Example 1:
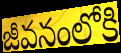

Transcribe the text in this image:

జీవనంలోకి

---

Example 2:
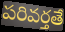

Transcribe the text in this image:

పరివర్తతే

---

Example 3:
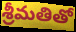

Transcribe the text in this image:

శ్రీమతితో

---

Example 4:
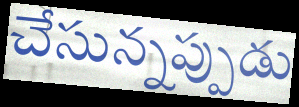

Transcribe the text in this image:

చేసున్నప్పుడు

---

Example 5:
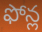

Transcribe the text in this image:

ఫోన్ల